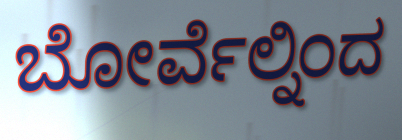
ಬೋರ್ವೆಲ್ನಿಂದ